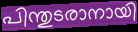
പിന്തുടരാനായി